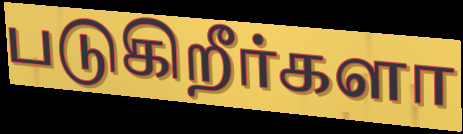
படுகிறீர்களா